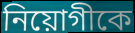
নিয়োগীকে